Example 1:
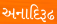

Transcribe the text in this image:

અનાદિરૂઢ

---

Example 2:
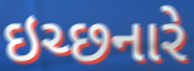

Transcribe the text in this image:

ઇચ્છનારે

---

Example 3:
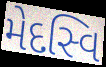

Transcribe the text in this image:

મેદસ્વિ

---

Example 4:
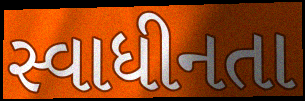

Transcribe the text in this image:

સ્વાધીનતા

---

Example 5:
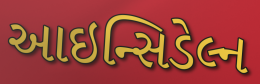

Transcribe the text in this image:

આઇન્સિડેલ્ન